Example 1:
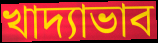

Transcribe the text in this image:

খাদ্যাভাব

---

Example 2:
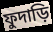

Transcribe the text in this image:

ফুদাড়ি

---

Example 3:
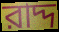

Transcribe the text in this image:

রাদ্দ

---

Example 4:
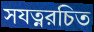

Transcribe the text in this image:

সযত্নরচিত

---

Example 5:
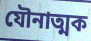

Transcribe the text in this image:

যৌনাত্মক